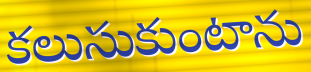
కలుసుకుంటాను